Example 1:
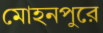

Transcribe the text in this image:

মোহনপুরে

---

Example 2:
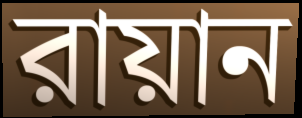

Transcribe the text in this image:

রায়ান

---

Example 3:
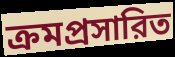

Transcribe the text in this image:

ক্রমপ্রসারিত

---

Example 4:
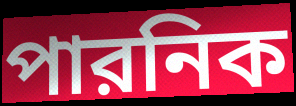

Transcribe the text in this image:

পারনিক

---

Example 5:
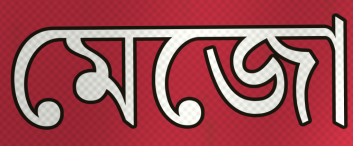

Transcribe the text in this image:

মেজো